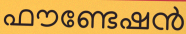
ഫൗണ്ടേഷൻ